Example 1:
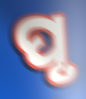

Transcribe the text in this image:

ପୃ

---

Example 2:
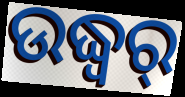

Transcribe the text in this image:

ଉଦ୍ଧ୍ୱର୍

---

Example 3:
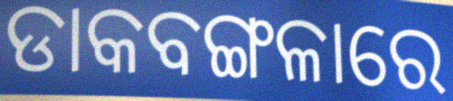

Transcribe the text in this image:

ଡାକବଙ୍ଗଳାରେ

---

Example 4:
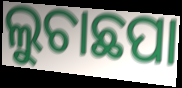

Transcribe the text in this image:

ଲୁଚାଛପା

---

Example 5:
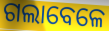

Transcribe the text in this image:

ଗଲାବେଳେ